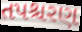
તપશ્ચરણ